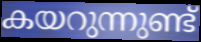
കയറുന്നുണ്ട്